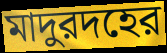
মাদুরদহের